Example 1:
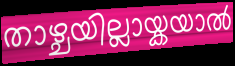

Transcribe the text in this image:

താഴ്ചയില്ലായ്കയാൽ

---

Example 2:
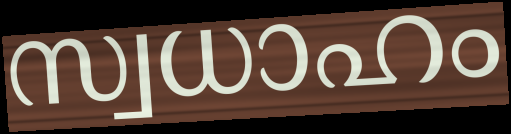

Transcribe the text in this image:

സ്വധാഹം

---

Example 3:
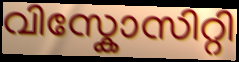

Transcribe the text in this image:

വിസ്കോസിറ്റി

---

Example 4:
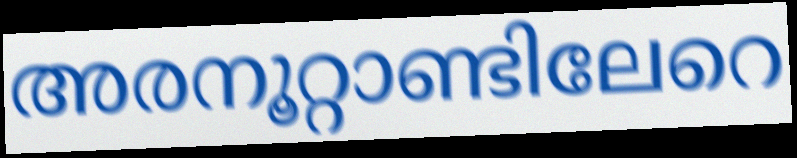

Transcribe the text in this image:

അരനൂറ്റാണ്ടിലേറെ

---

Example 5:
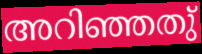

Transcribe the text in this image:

അറിഞ്ഞതു്